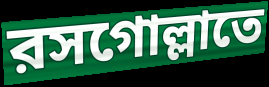
রসগোল্লাতে